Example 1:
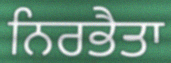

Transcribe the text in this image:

ਨਿਰਭੈਤਾ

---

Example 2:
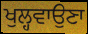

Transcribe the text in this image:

ਖੁਲ੍ਹਵਾਉਣਾ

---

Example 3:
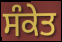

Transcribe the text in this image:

ਸੰਕੇਤ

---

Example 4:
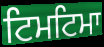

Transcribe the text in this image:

ਟਿਮਟਿਮਾ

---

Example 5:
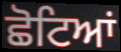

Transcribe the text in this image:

ਛੋਟਿਆਂ